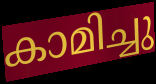
കാമിച്ചു